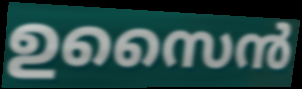
ഉസൈൻ